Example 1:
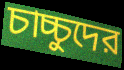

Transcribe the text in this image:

চাচ্চুদের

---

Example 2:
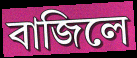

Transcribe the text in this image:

বাজিলে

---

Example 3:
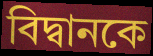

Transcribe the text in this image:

বিদ্বানকে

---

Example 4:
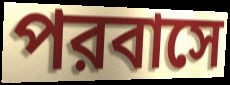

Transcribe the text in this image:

পরবাসে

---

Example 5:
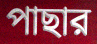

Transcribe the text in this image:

পাছার